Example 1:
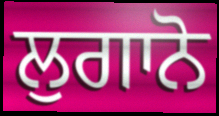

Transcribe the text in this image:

ਲੁਗਾਨੋ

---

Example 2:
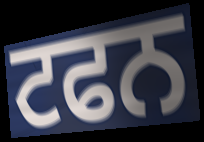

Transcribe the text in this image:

ਟਫਨ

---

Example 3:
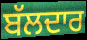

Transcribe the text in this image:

ਬੱਲਦਾਰ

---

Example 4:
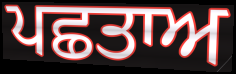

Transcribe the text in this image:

ਪਛਤਾਅ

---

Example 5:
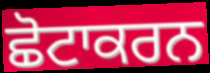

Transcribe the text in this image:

ਛੋਟਾਕਰਨ